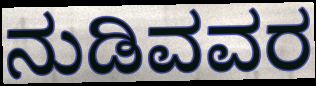
ನುಡಿವವರ